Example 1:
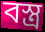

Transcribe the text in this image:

বস্ত্ৰ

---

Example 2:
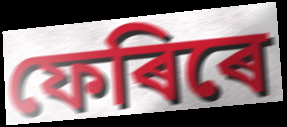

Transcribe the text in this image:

ফেৰিৰে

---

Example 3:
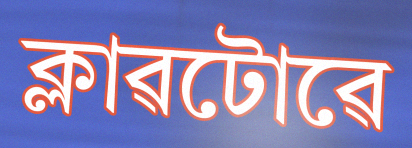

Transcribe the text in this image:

ক্লাৱটোৱে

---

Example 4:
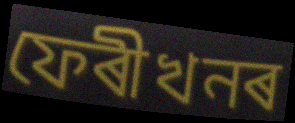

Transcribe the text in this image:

ফেৰীখনৰ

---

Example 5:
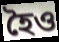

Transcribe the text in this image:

হৈও